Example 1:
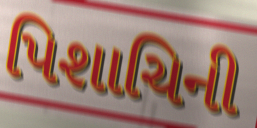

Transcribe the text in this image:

પિશાચિની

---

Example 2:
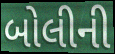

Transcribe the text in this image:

બોલીની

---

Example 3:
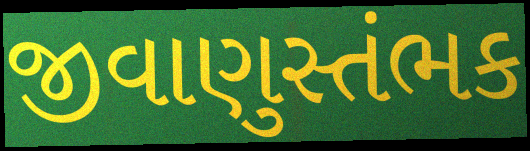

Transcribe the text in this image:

જીવાણુસ્તંભક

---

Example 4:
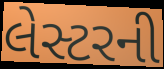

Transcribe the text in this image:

લેસ્ટરની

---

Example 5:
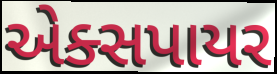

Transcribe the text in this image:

એક્સપાયર